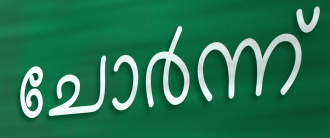
ചോർന്ന്